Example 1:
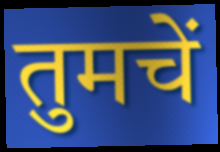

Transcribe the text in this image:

तुमचें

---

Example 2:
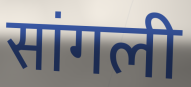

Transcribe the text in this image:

सांगली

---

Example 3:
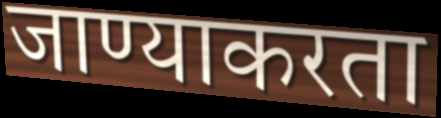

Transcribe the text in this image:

जाण्याकरता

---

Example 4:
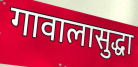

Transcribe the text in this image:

गावालासुद्धा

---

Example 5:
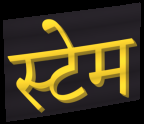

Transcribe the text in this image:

स्टेम